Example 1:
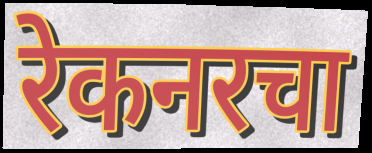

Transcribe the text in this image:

रेकनरचा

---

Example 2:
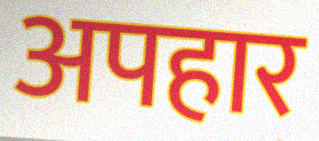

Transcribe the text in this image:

अपहार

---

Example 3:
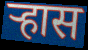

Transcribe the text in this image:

ऱ्हास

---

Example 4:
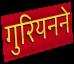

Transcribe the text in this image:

गुरियनने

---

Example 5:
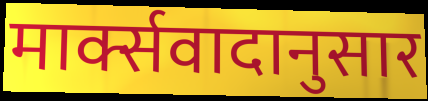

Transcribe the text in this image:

मार्क्सवादानुसार